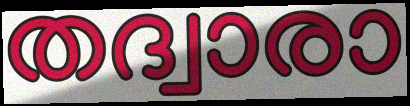
തദ്വാരാ